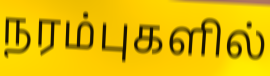
நரம்புகளில்